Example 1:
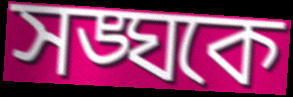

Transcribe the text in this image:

সঙ্ঘকে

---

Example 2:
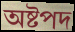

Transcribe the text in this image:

অষ্টপদ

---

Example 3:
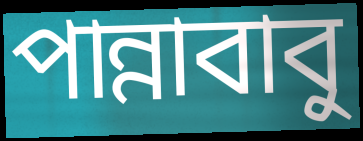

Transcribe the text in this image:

পান্নাবাবু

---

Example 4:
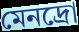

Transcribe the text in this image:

মেনদ্রো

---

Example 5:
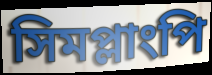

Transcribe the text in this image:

সিমপ্লাংপি